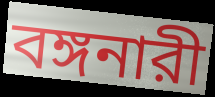
বঙ্গনারী